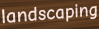
landscaping